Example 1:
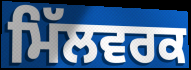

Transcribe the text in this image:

ਮਿੱਲਵਰਕ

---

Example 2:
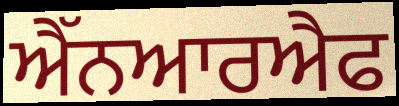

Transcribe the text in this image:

ਐੱਨਆਰਐਫ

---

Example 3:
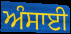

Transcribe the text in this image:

ਅੰਸਾਈ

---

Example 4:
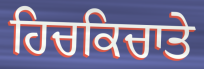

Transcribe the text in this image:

ਹਿਚਕਿਚਾਤੇ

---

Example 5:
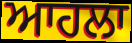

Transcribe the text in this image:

ਆਹਲਾ